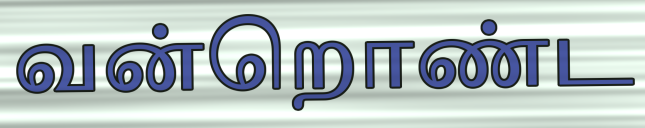
வன்றொண்ட